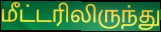
மீட்டரிலிருந்து